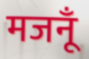
मजनूँ